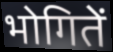
भोगितें